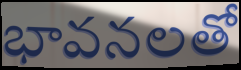
భావనలతో